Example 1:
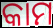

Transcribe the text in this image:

କାମ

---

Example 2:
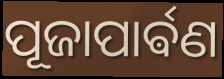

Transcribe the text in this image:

ପୂଜାପାର୍ଵଣ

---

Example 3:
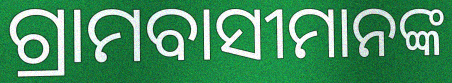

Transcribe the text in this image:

ଗ୍ରାମବାସୀମାନଙ୍କ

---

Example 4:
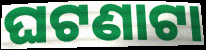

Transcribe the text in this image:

ଘଟଣାଟା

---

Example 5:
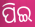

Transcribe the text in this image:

ପିଇ